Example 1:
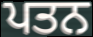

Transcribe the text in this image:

ਪਤਨ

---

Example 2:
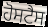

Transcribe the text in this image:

ਹੋਸਟੈਸ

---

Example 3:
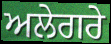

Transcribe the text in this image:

ਅਲੇਗਰੇ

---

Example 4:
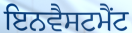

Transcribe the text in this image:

ਇਨਵੈਸਟਮੈਂਟ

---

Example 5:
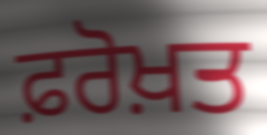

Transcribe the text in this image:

ਫ਼ਰੋਖ਼ਤ